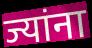
ज्यांना